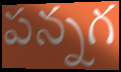
పన్నగ